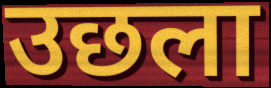
उछला